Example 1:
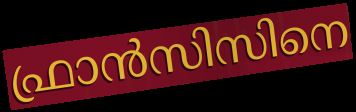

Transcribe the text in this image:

ഫ്രാൻസിസിനെ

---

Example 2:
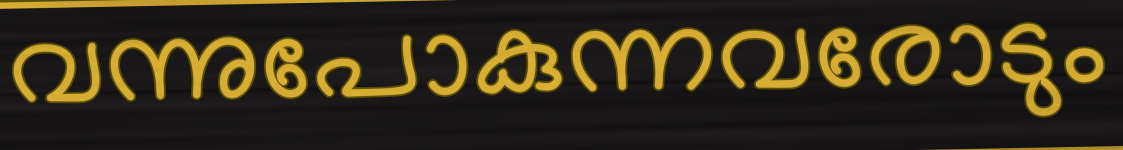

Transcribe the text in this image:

വന്നുപോകുന്നവരോടും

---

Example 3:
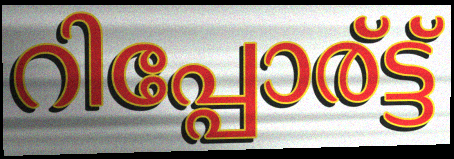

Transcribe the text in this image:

റിപ്പോര്ട്ട്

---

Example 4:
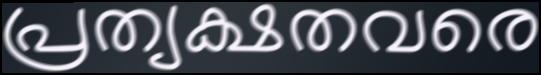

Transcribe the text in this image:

പ്രത്യക്ഷതവരെ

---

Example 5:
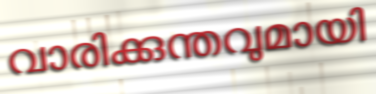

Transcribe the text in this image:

വാരിക്കുന്തവുമായി